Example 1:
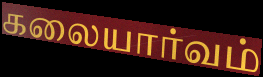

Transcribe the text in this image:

கலையார்வம்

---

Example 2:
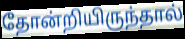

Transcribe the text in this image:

தோன்றியிருந்தால்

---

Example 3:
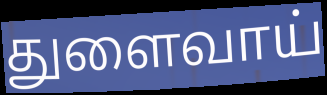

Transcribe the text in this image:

துளைவாய்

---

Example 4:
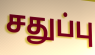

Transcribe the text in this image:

சதுப்பு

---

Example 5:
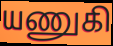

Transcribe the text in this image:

யணுகி